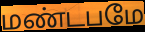
மண்டபமே